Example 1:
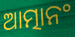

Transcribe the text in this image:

ଆତ୍ମାନଂ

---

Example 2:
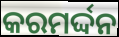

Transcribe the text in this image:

କରମର୍ଦ୍ଦନ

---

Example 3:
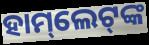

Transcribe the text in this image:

ହାମ୍‌ଲେଟ୍‌ଙ୍କ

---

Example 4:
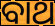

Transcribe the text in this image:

ବାଥ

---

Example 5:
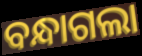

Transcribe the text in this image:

ବନ୍ଧାଗଲା